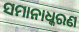
ସମାନାଧ୍କରଣ